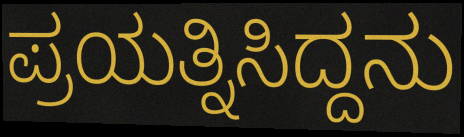
ಪ್ರಯತ್ನಿಸಿದ್ದನು